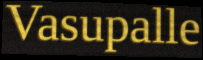
Vasupalle